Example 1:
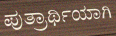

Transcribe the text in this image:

ಪುತ್ರಾರ್ಥಿಯಾಗಿ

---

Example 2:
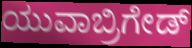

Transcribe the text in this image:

ಯುವಾಬ್ರಿಗೇಡ್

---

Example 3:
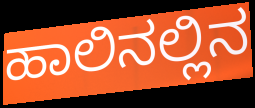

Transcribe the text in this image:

ಹಾಲಿನಲ್ಲಿನ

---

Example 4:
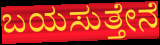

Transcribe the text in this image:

ಬಯಸುತ್ತೇನೆ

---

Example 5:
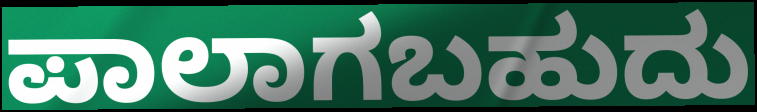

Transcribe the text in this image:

ಪಾಲಾಗಬಹುದು